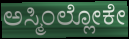
ಅಸ್ಮಿಂಲ್ಲೋಕೇ